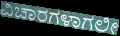
ವಿಚಾರಗಳಾಗಲೀ